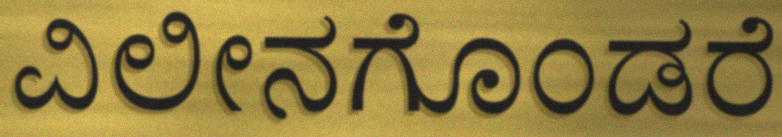
ವಿಲೀನಗೊಂಡರೆ